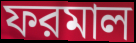
ফরমাল